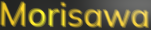
Morisawa